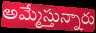
అమ్మేస్తున్నారు